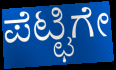
ಪೆಟ್ಟಿಗೇ